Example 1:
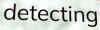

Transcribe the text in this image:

detecting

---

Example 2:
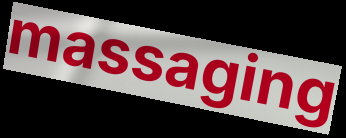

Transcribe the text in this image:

massaging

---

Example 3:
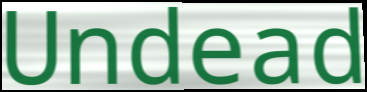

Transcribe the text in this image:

Undead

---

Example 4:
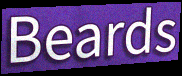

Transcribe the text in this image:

Beards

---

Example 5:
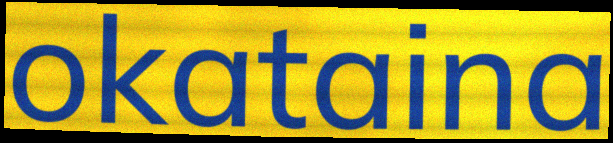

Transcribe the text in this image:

okataina